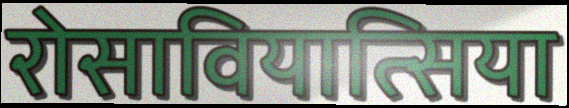
रोसावियात्सिया